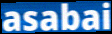
asabai